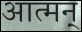
आत्मन्